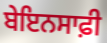
ਬੇਇਨਸਾਫ਼ੀ